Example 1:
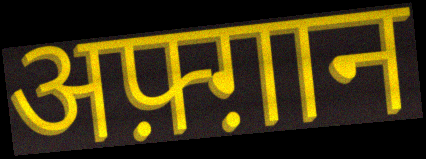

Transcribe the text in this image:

अफ़्ग़ान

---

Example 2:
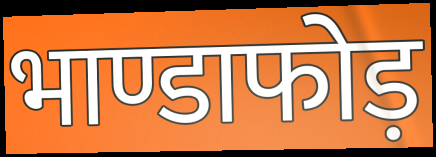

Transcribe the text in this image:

भाण्डाफोड़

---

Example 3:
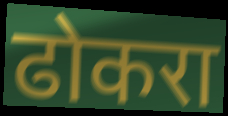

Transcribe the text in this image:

ढोकरा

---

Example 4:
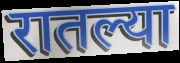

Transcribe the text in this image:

रातल्या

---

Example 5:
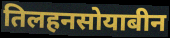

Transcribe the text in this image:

तिलहनसोयाबीन